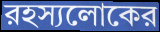
রহস্যলোকের